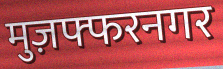
मुज़फ्फरनगर